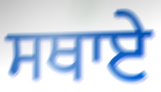
ਸਥਾਏ